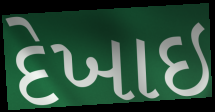
દેખાઇ